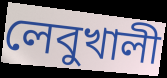
লেবুখালী